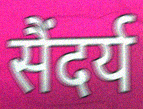
सैंदर्य